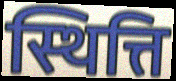
स्थित्ति